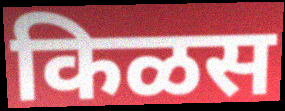
किळस